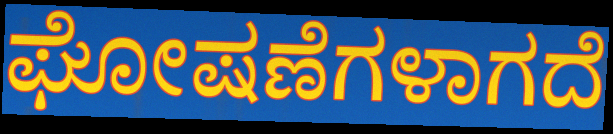
ಘೋಷಣೆಗಳಾಗದೆ